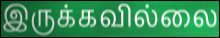
இருக்கவில்லை